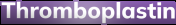
Thromboplastin